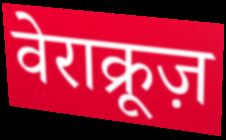
वेराक्रूज़